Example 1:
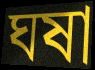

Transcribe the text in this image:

ঘষা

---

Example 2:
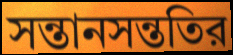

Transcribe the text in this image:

সন্তানসন্ততির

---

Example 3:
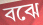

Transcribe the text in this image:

বঝে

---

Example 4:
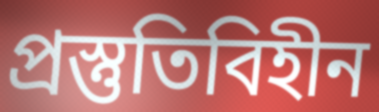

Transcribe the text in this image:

প্রস্তুতিবিহীন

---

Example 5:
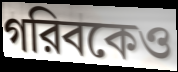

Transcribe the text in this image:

গরিবকেও